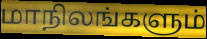
மாநிலங்களும்